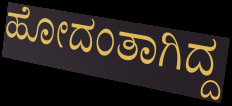
ಹೋದಂತಾಗಿದ್ದ